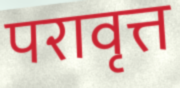
परावृत्त